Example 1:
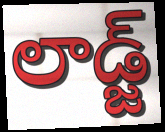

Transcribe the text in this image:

లాడ్జ్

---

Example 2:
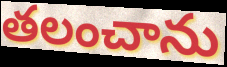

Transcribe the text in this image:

తలంచాను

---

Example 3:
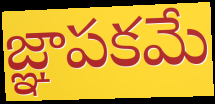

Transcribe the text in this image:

జ్ఞాపకమే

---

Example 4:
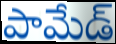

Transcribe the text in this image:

పామేడ్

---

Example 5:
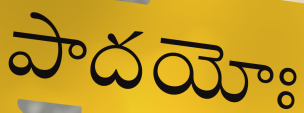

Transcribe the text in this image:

పాదయోః